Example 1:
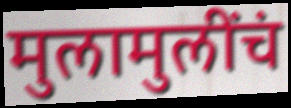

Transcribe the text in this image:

मुलामुलींचं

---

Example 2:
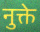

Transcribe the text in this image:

नुक्ते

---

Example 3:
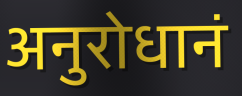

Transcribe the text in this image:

अनुरोधानं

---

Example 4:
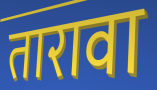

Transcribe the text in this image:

तारावा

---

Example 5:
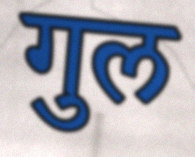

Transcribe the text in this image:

गुल